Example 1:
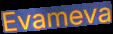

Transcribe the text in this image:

Evameva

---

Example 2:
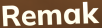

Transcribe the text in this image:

Remak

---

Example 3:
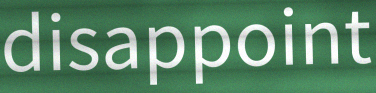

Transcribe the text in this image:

disappoint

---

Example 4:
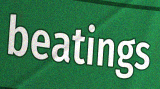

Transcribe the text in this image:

beatings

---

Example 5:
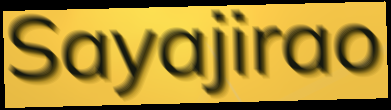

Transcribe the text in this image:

Sayajirao